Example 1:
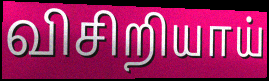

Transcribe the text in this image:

விசிறியாய்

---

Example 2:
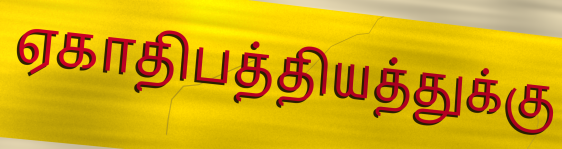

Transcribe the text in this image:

ஏகாதிபத்தியத்துக்கு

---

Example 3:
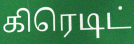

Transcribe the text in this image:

கிரெடிட்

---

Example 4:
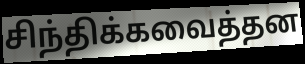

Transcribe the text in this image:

சிந்திக்கவைத்தன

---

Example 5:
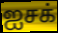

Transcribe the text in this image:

ஐசக்